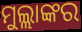
ମୁଲ୍ଲାଙ୍କର